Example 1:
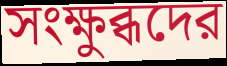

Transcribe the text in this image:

সংক্ষুব্ধদের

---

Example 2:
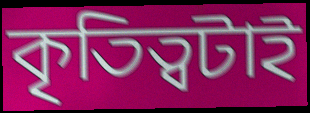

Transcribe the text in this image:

কৃতিত্বটাই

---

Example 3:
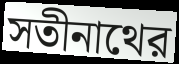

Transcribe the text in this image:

সতীনাথের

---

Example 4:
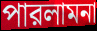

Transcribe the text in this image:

পারলামনা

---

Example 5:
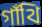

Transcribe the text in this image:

গাঁথি